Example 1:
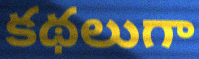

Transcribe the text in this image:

కథలుగా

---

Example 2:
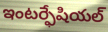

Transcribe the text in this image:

ఇంటర్ఫేషియల్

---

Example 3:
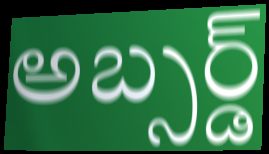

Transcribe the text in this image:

అబ్సర్డ్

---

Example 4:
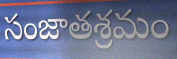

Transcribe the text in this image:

సంజాతశ్రమం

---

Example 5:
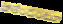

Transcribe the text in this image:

పోతోందంటూ